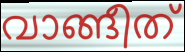
വാങ്ങീത്